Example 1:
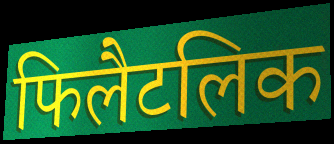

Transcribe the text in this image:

फिलैटलिक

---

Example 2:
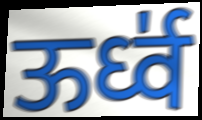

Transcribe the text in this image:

ऊर्ध्व॑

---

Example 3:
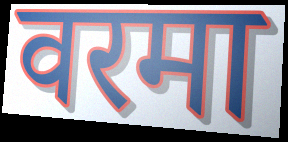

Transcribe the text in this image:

वरमा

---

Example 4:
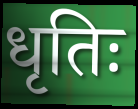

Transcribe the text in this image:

धृतिः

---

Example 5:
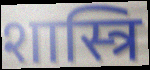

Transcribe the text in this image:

शास्त्रि